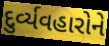
દુર્વ્યવહારોને